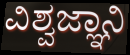
ವಿಶ್ವಜ್ಞಾನಿ